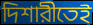
দিশারীতেই